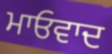
ਮਾਓਵਾਦ